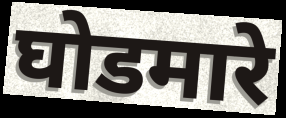
घोडमारे